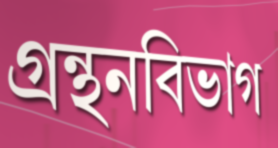
গ্রন্থনবিভাগ